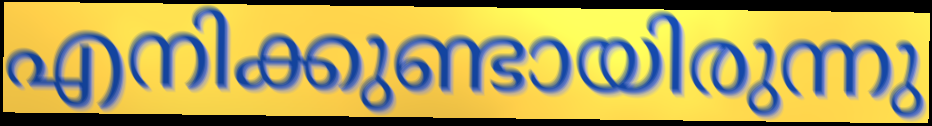
എനിക്കുണ്ടായിരുന്നു